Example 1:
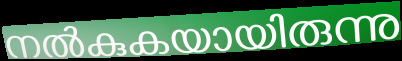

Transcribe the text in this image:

നൽകുകയായിരുന്നു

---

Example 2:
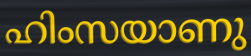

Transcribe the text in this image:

ഹിംസയാണു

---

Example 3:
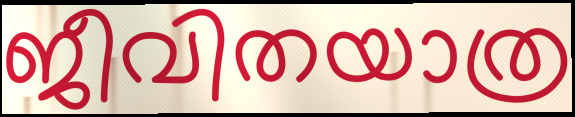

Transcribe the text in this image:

ജീവിതയാത്ര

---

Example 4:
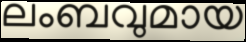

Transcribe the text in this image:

ലംബവുമായ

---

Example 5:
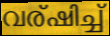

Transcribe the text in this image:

വര്ഷിച്ച്